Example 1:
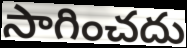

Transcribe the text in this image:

సాగించదు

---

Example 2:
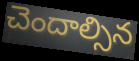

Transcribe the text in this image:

చెందాల్సిన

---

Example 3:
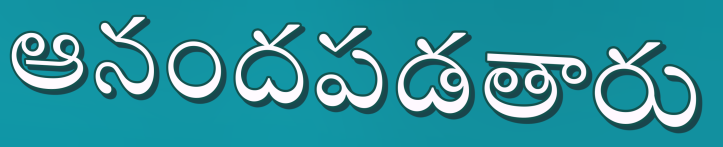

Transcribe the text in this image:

ఆనందపడతారు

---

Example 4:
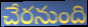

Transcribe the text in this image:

చేరనుంది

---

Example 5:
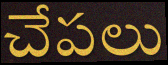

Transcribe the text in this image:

చేపలు